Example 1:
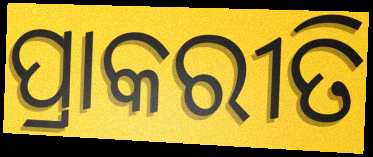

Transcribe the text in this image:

ପ୍ରାକରୀତି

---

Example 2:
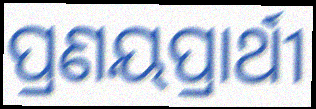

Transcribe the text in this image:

ପ୍ରଣୟପ୍ରାର୍ଥୀ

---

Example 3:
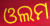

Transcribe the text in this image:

ଓଲମ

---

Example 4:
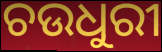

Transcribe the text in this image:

ଚଉଧୁରୀ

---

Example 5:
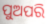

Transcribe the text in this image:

ପୁଅପରି